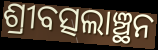
ଶ୍ରୀବତ୍ସଲାଞ୍ଛନ